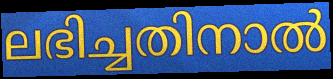
ലഭിച്ചതിനാൽ